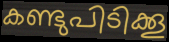
കണ്ടുപിടിക്കൂ